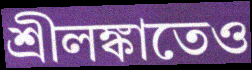
শ্রীলঙ্কাতেও